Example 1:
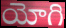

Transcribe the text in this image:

యోగి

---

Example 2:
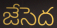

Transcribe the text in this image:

జేసెద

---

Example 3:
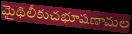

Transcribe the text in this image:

మైథిలీకుచభూషణామల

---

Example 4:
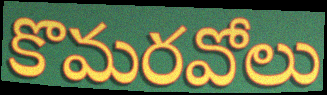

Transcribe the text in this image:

కొమరవోలు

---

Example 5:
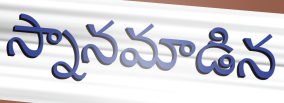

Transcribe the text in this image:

స్నానమాడిన